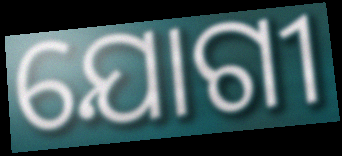
ଯୋଗୀ